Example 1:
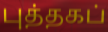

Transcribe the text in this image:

புத்தகப்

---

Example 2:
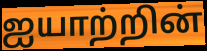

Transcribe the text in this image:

ஐயாற்றின்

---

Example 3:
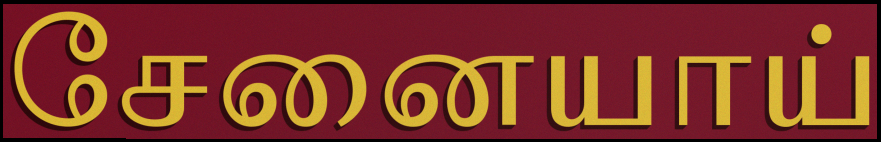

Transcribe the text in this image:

சேனையாய்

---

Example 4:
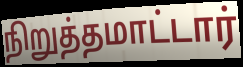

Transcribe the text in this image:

நிறுத்தமாட்டார்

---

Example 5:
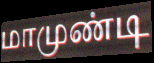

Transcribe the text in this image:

மாமுண்டி